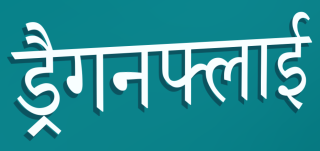
ड्रैगनफ्लाई